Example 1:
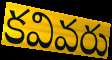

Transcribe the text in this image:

కవివరు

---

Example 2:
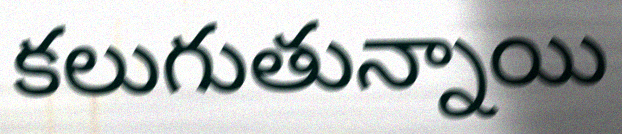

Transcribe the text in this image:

కలుగుతున్నాయి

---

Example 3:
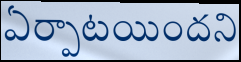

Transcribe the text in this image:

ఏర్పాటయిందని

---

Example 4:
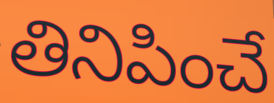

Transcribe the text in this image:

తినిపించే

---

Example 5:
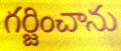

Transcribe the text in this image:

గర్జించాను